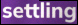
settling